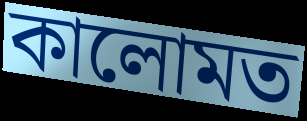
কালোমত